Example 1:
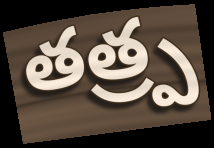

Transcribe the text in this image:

తత్ర్ప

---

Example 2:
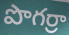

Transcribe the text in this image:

పొగర్రా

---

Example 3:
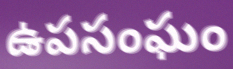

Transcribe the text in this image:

ఉపసంఘం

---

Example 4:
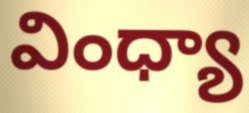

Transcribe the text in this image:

వింధ్యా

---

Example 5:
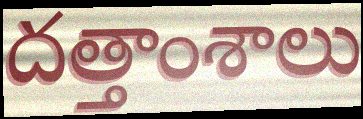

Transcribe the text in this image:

దత్తాంశాలు